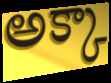
అక్కా